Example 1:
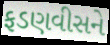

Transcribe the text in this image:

ફડણવીસને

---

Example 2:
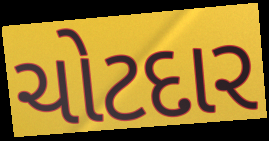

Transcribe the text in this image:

ચોટદાર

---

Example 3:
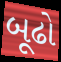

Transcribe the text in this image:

બૂઢો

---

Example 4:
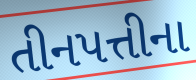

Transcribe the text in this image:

તીનપત્તીના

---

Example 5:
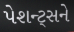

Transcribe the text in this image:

પેશન્ટ્સને